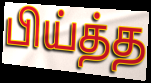
பிய்த்த